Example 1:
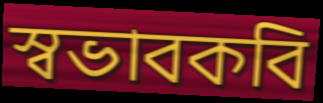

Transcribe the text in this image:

স্বভাবকবি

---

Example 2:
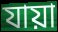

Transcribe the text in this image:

যায়া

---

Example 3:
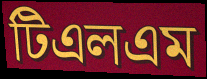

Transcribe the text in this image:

টিএলএম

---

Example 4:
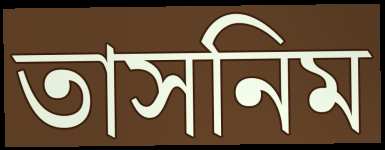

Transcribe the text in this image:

তাসনিম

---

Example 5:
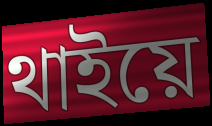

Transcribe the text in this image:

থাইয়ে